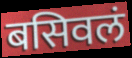
बसिवलं